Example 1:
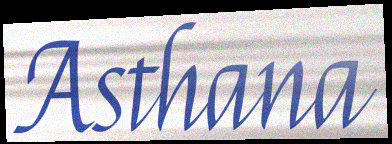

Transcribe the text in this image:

Asthana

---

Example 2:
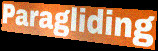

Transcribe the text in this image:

Paragliding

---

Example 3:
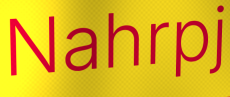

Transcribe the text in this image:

Nahrpj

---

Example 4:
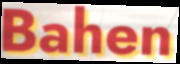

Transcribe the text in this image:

Bahen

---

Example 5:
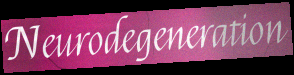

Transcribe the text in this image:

Neurodegeneration